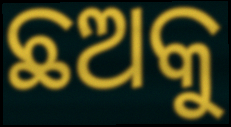
ଛଅକୁ